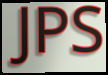
JPS